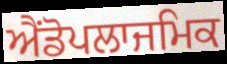
ਐਂਡੋਪਲਾਜਮਿਕ